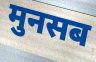
मुनसब